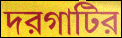
দরগাটির